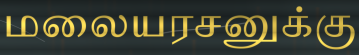
மலையரசனுக்கு